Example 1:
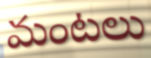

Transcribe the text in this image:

మంటలు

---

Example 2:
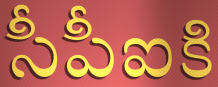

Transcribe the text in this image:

సీపీఐకి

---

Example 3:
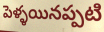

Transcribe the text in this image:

పెళ్ళయినప్పటి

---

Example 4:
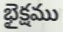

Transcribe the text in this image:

భైక్షము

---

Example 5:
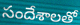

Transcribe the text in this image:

సందేశాలతో